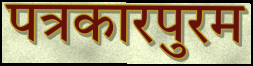
पत्रकारपुरम